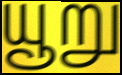
யூறு